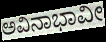
ಅವಿನಾಭಾವೀ